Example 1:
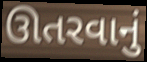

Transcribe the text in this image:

ઊતરવાનું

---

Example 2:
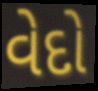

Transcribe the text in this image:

વેદો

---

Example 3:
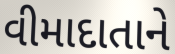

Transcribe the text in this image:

વીમાદાતાને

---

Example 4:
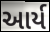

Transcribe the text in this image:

આર્ય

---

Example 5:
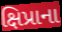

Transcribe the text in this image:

ક્ષિપ્રાના